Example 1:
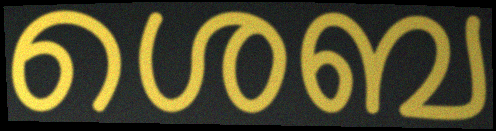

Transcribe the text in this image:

ശെബ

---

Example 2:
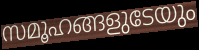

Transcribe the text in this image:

സമൂഹങ്ങളുടേയും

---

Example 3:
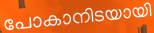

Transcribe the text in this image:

പോകാനിടയായി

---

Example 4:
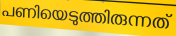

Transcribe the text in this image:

പണിയെടുത്തിരുന്നത്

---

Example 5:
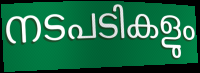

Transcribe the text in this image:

നടപടികളും